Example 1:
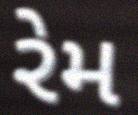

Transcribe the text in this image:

રેમ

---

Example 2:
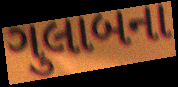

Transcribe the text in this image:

ગુલાબના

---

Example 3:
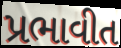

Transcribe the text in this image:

પ્રભાવીત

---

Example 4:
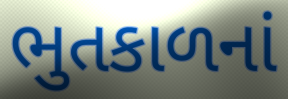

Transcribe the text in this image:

ભુતકાળનાં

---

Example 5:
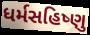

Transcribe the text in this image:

ધર્મસહિષ્ણુ